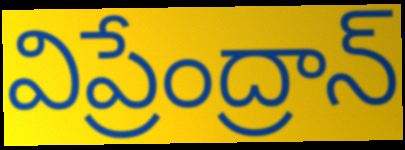
విప్రేంద్రాన్